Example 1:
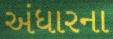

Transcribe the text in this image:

અંધારના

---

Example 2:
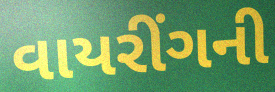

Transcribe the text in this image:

વાયરીંગની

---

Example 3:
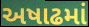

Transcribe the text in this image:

અષાઢમાં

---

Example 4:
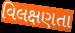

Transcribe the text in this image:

વિલક્ષણતા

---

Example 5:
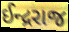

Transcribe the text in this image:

ઈન્દ્રરાજ